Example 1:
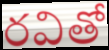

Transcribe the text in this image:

రవితో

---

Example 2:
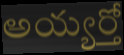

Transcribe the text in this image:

అయ్యర్తో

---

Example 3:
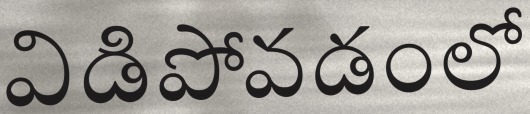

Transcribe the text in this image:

విడిపోవడంలో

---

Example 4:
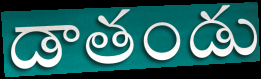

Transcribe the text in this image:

డాతండు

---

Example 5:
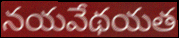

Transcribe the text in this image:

నయవేథయత